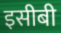
इसीबी